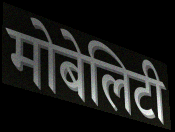
मोबेलिटी